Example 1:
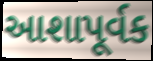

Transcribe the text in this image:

આશાપૂર્વક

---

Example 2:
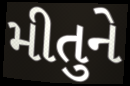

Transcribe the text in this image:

મીતુને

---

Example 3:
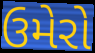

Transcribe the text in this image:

ઉમેરો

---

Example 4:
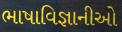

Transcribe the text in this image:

ભાષાવિજ્ઞાનીઓ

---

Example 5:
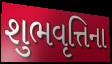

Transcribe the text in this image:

શુભવૃત્તિના